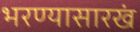
भरण्यासारखं